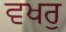
ਵਖਰੁ